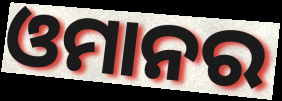
ଓମାନର